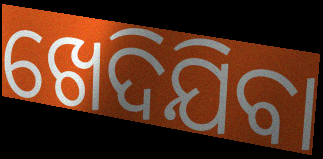
ଖେଦିଯିବା